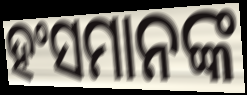
ହଂସମାନଙ୍କ